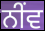
ਨੀਂਵ